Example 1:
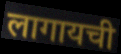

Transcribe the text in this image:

लागायची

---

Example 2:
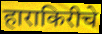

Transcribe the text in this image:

हाराकिरीचे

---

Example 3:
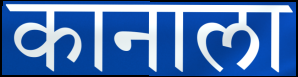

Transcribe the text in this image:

कानाला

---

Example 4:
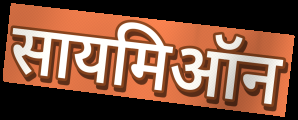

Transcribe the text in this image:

सायमिऑन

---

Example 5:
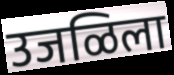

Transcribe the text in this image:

उजळिला